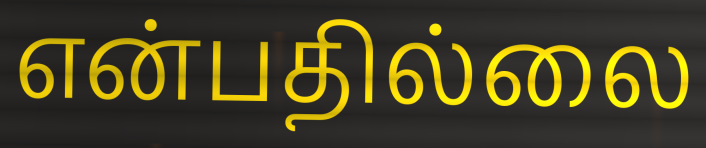
என்பதில்லை